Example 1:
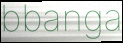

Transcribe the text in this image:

bbanga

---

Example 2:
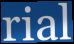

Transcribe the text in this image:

rial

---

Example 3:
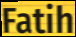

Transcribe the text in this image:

Fatih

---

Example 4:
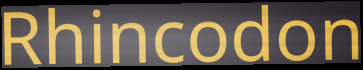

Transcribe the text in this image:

Rhincodon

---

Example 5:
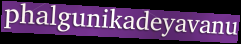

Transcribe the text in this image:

phalgunikadeyavanu